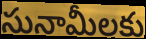
సునామీలకు